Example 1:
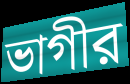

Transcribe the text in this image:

ভাগীর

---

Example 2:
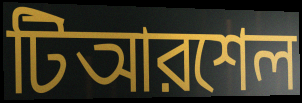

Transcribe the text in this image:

টিআরশেল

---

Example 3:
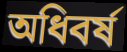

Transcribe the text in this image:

অধিবর্ষ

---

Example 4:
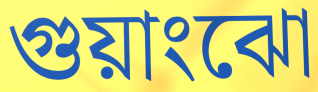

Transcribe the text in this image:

গুয়াংঝো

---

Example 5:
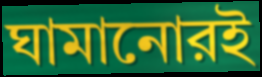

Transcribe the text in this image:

ঘামানোরই